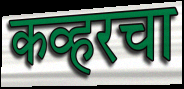
कव्हरचा